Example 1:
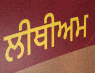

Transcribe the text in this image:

ਲੀਥੀਅਮ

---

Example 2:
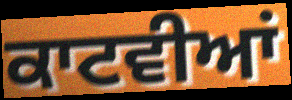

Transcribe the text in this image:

ਕਾਟਵੀਆਂ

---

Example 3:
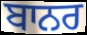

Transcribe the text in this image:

ਬਾਨਰ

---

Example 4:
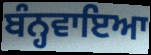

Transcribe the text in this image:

ਬੰਨ੍ਹਵਾਇਆ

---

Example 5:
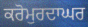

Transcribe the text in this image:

ਕਰੋਮੁਰਦਾਘਰ